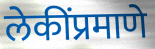
लेकींप्रमाणे